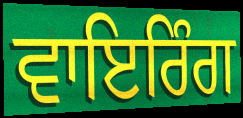
ਵਾਇਰਿੰਗ